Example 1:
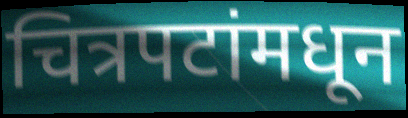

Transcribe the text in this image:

चित्रपटांमधून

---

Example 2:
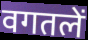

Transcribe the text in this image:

वगतलें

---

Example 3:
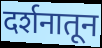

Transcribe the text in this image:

दर्शनातून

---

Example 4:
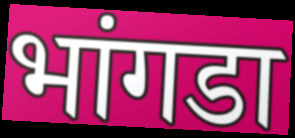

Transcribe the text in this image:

भांगडा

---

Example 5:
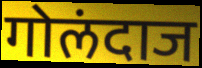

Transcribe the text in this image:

गोलंदाज